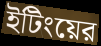
ইটিংয়ের